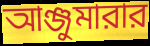
আঞ্জুমারার